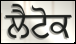
ਲੈਟੋਕ